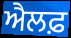
ਐਲਫ਼